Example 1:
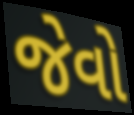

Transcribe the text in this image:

જેવો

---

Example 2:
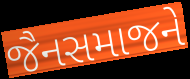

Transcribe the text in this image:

જૈનસમાજને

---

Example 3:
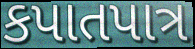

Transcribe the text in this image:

કપાતપાત્ર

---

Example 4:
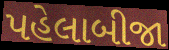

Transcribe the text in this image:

પહેલાબીજા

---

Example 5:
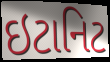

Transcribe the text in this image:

ઇટાનિટ